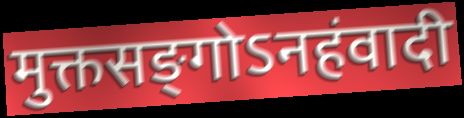
मुक्तसङ्गोऽनहंवादी